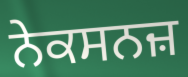
ਨੇਕਸਨਜ਼